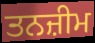
ਤਨਜ਼ੀਮ